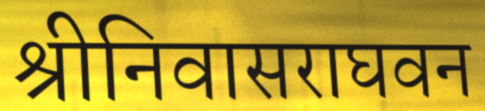
श्रीनिवासराघवन